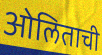
ओलिताची